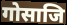
गोसाजि